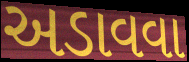
અડાવવા